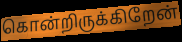
கொன்றிருக்கிறேன்